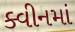
ક્વીનમાં